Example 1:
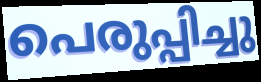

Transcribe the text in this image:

പെരുപ്പിച്ചു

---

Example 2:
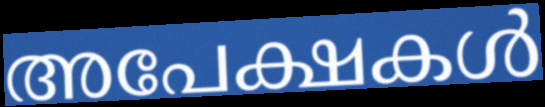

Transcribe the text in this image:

അപേക്ഷകൾ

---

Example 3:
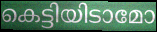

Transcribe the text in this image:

കെട്ടിയിടാമോ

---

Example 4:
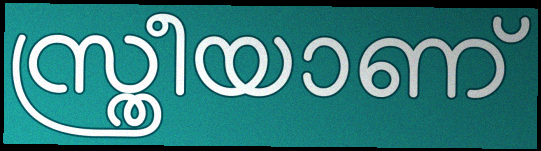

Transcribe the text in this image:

സ്ത്രീയാണ്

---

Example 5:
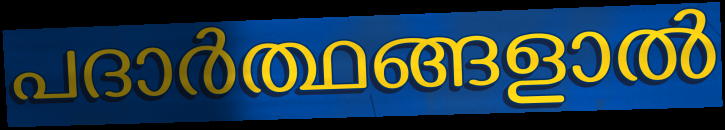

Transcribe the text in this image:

പദാർത്ഥങ്ങളാൽ